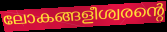
ലോകങ്ങളീശ്വരന്റെ